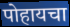
पोहायचा